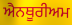
ਐਨਥੂਰੀਅਮ